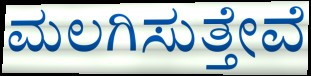
ಮಲಗಿಸುತ್ತೇವೆ